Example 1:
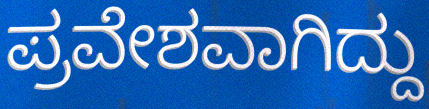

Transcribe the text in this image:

ಪ್ರವೇಶವಾಗಿದ್ದು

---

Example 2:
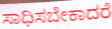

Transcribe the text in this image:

ಸಾಧಿಸಬೇಕಾದರೆ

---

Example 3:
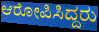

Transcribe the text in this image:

ಆರೋಪಿಸಿದ್ದರು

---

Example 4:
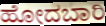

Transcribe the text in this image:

ಹೋದಬಾರಿ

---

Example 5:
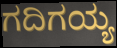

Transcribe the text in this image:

ಗದಿಗಯ್ಯ